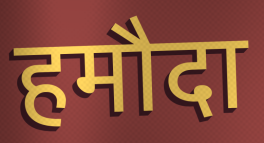
हमौदा